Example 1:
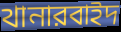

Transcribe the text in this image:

থানারবাইদ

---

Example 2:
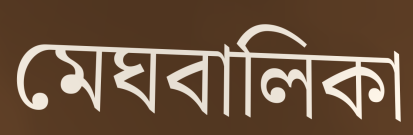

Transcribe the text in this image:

মেঘবালিকা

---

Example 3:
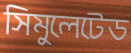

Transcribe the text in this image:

সিমুলেটেড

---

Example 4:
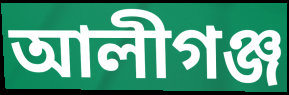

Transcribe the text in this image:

আলীগঞ্জ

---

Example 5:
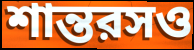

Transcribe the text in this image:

শান্তরসও